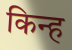
किन्ह